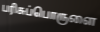
பரிசுப்பொருளை